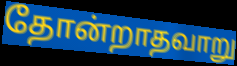
தோன்றாதவாறு